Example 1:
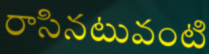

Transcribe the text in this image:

రాసినటువంటి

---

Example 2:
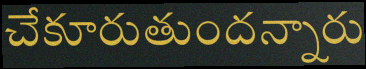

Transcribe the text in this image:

చేకూరుతుందన్నారు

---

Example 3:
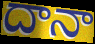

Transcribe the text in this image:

దానా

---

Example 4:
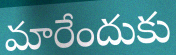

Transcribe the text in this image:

మారేందుకు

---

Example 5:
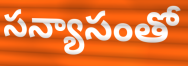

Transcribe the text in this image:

సన్యాసంతో